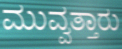
ಮುವ್ವತ್ತಾರು